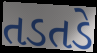
તડતડે